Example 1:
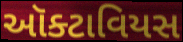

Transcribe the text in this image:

ઑક્ટાવિયસ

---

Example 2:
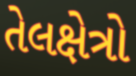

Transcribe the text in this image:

તેલક્ષેત્રો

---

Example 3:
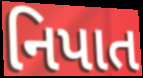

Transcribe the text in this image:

નિપાત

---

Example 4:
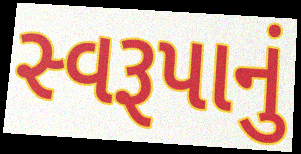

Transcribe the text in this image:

સ્વરૂપાનું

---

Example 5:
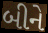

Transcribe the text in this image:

બીને